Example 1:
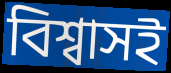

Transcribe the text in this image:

বিশ্বাসই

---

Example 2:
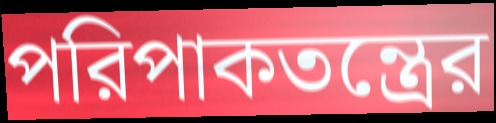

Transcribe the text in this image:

পরিপাকতন্ত্রের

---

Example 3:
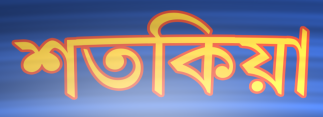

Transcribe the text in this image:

শতকিয়া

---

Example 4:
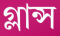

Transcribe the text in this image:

গ্লান্স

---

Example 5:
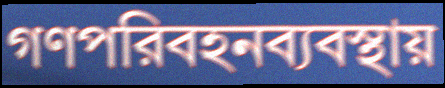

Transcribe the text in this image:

গণপরিবহনব্যবস্থায়